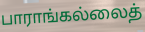
பாராங்கல்லைத்